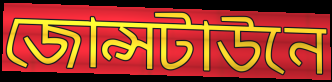
জোন্সটাউনে